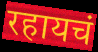
रहायचं